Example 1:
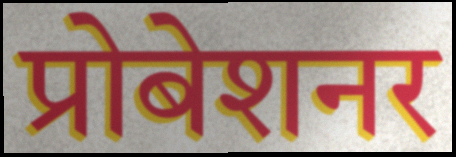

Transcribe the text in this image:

प्रोबेशनर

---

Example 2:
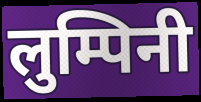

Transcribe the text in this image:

लुम्पिनी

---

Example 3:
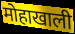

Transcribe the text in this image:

मोहाखाली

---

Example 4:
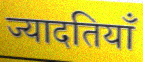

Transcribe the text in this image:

ज्यादतियाँ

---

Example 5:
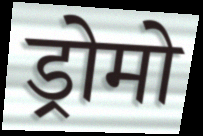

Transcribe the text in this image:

ड्रोमो